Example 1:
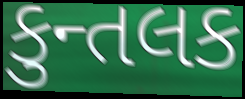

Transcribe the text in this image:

કુન્તલક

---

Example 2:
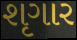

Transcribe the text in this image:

શૃગાર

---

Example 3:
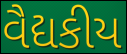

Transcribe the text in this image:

વૈદ્યકીય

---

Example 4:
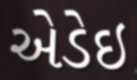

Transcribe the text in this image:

એડેઇ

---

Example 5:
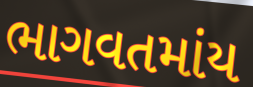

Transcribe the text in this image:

ભાગવતમાંય